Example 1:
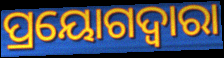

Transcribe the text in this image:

ପ୍ରୟୋଗଦ୍ୱାରା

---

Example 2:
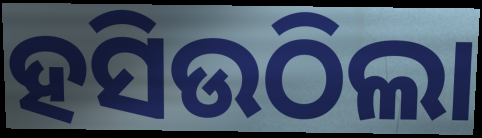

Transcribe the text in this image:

ହସିଉଠିଲା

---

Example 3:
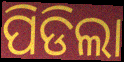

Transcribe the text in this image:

ପିଡିଲା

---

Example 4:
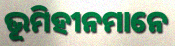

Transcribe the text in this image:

ଭୂମିହୀନମାନେ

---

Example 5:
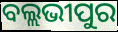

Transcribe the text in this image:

ବଲ୍ଲଭୀପୁର